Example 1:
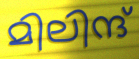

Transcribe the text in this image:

മിലിന്ദ്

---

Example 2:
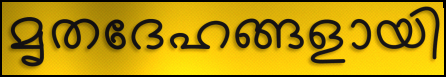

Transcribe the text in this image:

മൃതദേഹങ്ങളായി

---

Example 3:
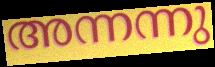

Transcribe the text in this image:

അന്നന്നു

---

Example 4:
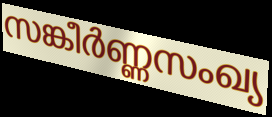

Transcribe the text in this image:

സങ്കീർണ്ണസംഖ്യ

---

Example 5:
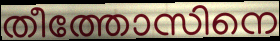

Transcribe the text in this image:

തീത്തോസിനെ